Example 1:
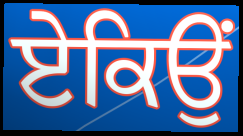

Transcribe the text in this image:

ਏਕਿਉਂ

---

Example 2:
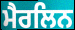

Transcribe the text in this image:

ਮੈਰਲਿਨ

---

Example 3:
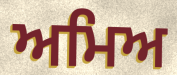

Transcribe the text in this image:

ਅਮਿਅ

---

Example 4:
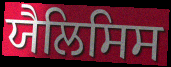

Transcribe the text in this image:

ਯੈਲਿਸਿਸ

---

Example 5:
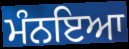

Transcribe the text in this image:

ਮੰਨਇਆ